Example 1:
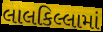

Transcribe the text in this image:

લાલકિલ્લામાં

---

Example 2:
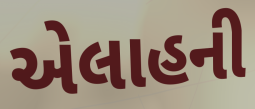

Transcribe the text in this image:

એલાહની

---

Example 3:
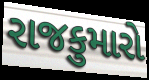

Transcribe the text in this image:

રાજકુમારો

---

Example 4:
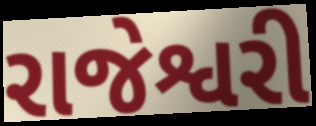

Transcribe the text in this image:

રાજેશ્વરી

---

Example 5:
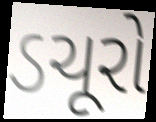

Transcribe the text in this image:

ડચૂરો